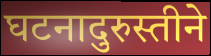
घटनादुरुस्तीने